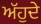
ਅੱਹੁਦੇ